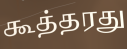
கூத்தரது